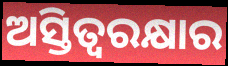
ଅସ୍ତିତ୍ୱରକ୍ଷାର